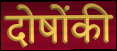
दोषोंकी